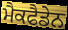
ਮੈਕਫੈਡੇਨ